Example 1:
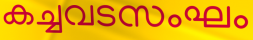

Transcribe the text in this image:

കച്ചവടസംഘം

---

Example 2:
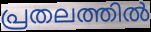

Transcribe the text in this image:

പ്രതലത്തിൽ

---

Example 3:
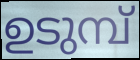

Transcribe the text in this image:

ഉടുമ്പ്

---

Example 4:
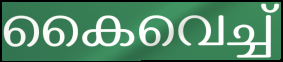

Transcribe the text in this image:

കൈവെച്ച്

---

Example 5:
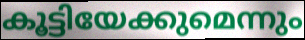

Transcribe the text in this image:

കൂട്ടിയേക്കുമെന്നും